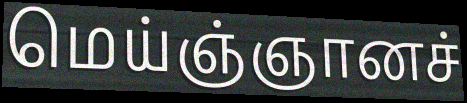
மெய்ஞ்ஞானச்